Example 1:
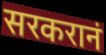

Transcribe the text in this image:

सरकरानं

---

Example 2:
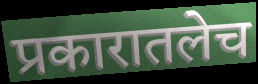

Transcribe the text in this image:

प्रकारातलेच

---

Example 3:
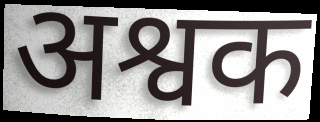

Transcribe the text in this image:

अश्वक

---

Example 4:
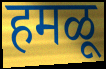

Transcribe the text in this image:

हमळू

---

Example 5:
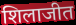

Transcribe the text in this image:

शिलाजीत